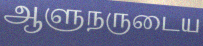
ஆளுநருடைய